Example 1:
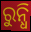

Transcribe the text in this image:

ରୁନ୍ଧି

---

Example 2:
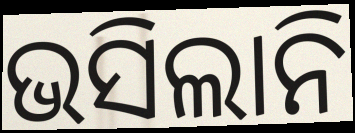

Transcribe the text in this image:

ଭସିଲାନି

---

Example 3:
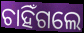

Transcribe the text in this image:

ଚାହିଁଗଲେ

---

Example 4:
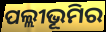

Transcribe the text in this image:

ପଲ୍ଲୀଭୂମିର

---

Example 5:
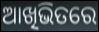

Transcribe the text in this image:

ଆଖିଭିତରେ